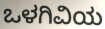
ಒಳಗಿವಿಯ